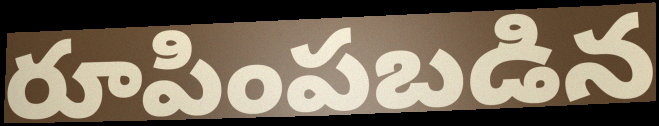
రూపింపబడిన